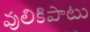
వులికిపాటు